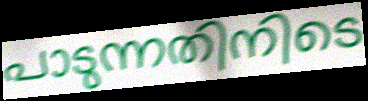
പാടുന്നതിനിടെ